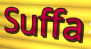
Suffa